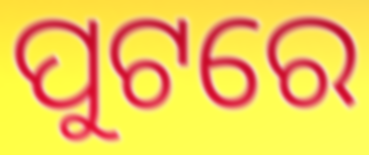
ପୁଟରେ